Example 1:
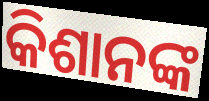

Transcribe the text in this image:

କିଶାନଙ୍କ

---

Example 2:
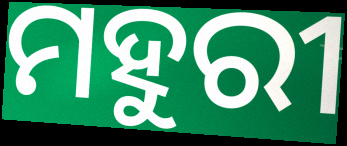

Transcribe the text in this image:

ମହୁରୀ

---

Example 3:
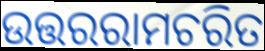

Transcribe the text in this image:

ଉତ୍ତରରାମଚରିତ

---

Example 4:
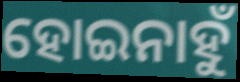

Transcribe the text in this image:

ହୋଇନାହୁଁ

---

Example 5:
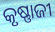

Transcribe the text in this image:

କୃଷ୍ଣାଜୀ